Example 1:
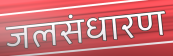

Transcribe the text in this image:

जलसंधारण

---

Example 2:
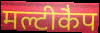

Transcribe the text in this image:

मल्टीकैप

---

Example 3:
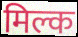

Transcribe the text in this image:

मिल्क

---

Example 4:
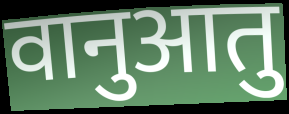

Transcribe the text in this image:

वानुआतु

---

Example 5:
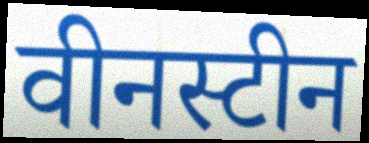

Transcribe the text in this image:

वीनस्टीन